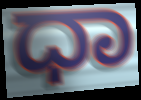
ಧಾ